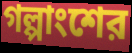
গল্পাংশের